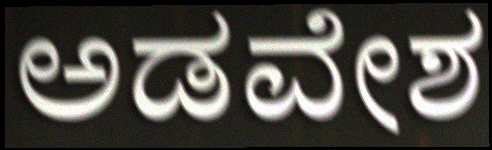
ಅಡವೇಶ